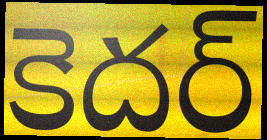
కెదర్